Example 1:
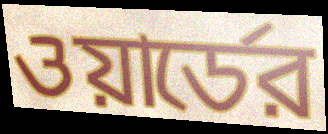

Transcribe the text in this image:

ওয়ার্ডের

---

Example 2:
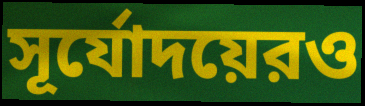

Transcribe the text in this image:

সূর্যোদয়েরও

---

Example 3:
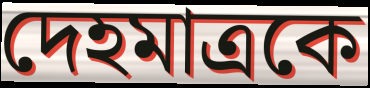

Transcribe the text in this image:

দেহমাত্রকে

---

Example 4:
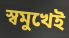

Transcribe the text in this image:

স্বমুখেই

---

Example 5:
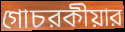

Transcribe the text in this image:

গোচরকীয়ার